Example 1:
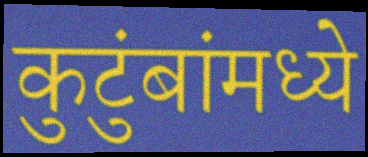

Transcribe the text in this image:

कुटुंबांमध्ये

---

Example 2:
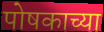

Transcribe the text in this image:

पोषकाच्या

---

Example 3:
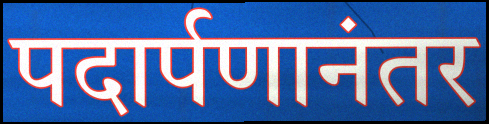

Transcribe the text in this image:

पदार्पणानंतर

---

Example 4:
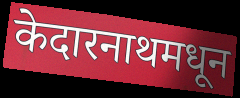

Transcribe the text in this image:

केदारनाथमधून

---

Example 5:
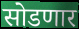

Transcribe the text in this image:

सोडणार